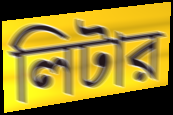
লিটার